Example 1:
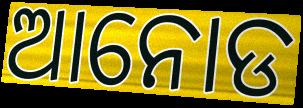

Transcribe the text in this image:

ଆନୋଡ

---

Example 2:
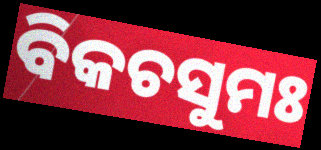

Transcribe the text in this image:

ବିକଚସୁମଃ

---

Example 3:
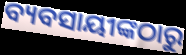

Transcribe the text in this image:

ବ୍ୟବସାୟୀଙ୍କଠାରୁ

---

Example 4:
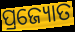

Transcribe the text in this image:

ପ୍ରଜ୍ୟୋତ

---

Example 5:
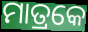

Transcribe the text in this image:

ମାତ୍ରକେ